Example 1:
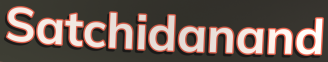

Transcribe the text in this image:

Satchidanand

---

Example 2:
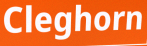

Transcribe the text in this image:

Cleghorn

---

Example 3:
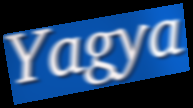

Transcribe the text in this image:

Yagya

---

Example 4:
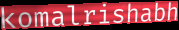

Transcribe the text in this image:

komalrishabh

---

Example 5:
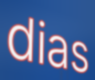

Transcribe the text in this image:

dias